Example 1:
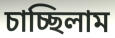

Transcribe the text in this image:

চাচ্ছিলাম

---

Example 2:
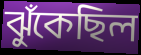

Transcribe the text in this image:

ঝুঁকেছিল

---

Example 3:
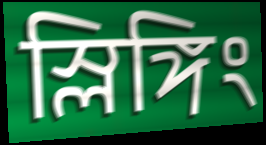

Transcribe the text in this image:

স্লিঙ্গিং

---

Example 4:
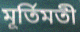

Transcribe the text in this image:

মূর্তিমতী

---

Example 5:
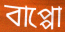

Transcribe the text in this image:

বাপ্পো